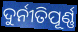
ଦୁର୍ନୀତିପୂର୍ଣ୍ଣ